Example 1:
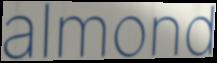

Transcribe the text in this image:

almond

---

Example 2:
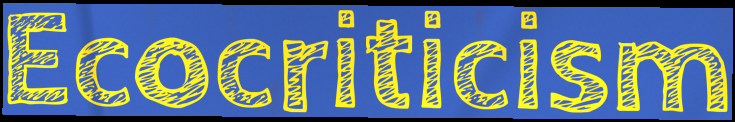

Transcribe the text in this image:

Ecocriticism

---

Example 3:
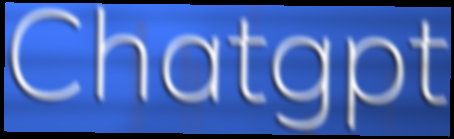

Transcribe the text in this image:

Chatgpt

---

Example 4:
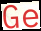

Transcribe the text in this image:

Ge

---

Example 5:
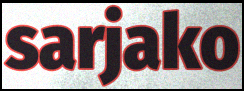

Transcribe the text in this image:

sarjako